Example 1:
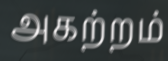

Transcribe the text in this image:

அகற்றம்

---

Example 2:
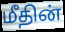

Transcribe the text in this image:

மீதின்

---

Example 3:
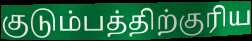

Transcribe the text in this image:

குடும்பத்திற்குரிய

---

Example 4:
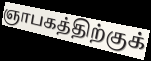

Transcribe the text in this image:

ஞாபகத்திற்குக்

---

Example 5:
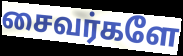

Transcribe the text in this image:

சைவர்களே